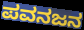
ಪವನಜನ